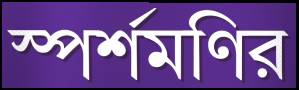
স্পর্শমণির